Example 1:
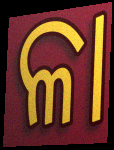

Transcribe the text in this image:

ଳା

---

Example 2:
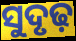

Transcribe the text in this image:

ସୁଦୃଢ଼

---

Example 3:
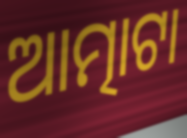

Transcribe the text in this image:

ଆତ୍ମାଟା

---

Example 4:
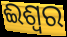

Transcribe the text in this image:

ଈଶ୍ୱର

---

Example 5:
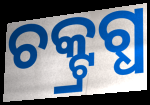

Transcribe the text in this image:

ଚକ୍ଟ୍ରଗ୍ଧ